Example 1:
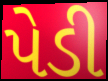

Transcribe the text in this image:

પેડી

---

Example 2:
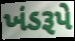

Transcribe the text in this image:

ખંડરૂપે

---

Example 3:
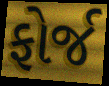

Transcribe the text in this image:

ફોર્જ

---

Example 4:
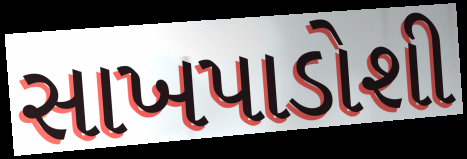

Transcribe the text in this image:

સાખપાડોશી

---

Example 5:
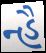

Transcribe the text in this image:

ન્હૈ